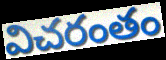
విచరంతం